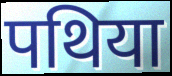
पथिया